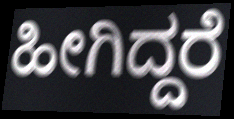
ಹೀಗಿದ್ದರೆ